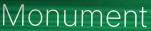
Monument